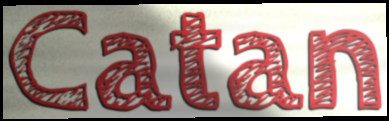
Catan